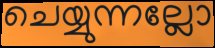
ചെയ്യുന്നല്ലോ